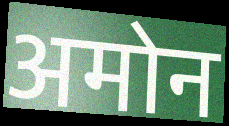
अमोन